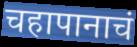
चहापानाचं